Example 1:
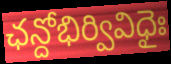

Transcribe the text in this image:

ఛన్దోభిర్వివిధైః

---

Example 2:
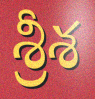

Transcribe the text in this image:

శ్రీశ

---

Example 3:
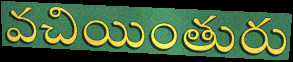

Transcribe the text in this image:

వచియింతురు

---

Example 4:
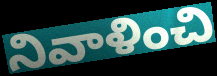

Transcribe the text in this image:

నివాళించి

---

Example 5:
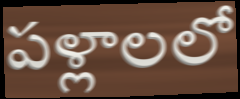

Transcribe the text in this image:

పళ్లాలలో